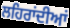
ਲਹਿਰਾਂਦੀਆਂ